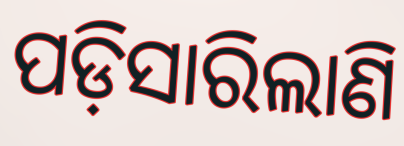
ପଡ଼ିସାରିଲାଣି